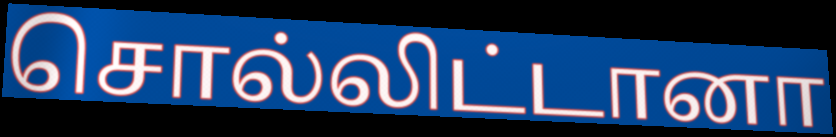
சொல்லிட்டானா